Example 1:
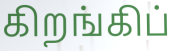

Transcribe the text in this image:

கிறங்கிப்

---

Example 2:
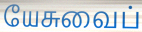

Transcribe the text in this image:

யேசுவைப்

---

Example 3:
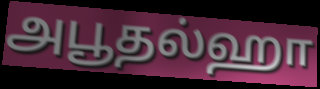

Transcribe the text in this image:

அபூதல்ஹா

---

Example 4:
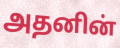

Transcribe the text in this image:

அதனின்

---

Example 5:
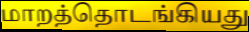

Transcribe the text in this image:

மாறத்தொடங்கியது